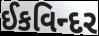
ઈકવિન્દર